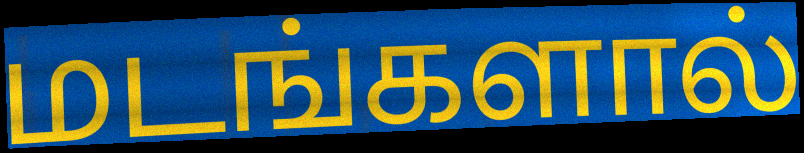
மடங்களால்